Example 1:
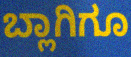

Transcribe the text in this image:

ಬ್ಲಾಗಿಗೂ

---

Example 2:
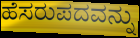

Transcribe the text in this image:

ಹೆಸರುಪದವನ್ನು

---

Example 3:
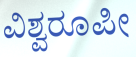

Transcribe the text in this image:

ವಿಶ್ವರೂಪೀ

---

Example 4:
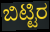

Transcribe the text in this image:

ಬಿಟ್ಟಿರ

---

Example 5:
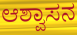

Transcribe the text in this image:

ಆಶ್ವಾಸನ